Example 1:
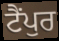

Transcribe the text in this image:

ਟੈਂਪੁਰ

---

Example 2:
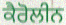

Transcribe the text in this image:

ਕੈਰੋਲੀਨ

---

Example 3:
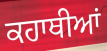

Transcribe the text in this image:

ਕਹਾਥੀਆਂ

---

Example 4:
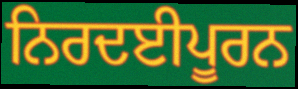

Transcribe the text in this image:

ਨਿਰਦਈਪੂਰਨ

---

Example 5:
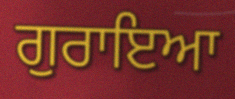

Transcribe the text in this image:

ਗੁਰਾਇਆ